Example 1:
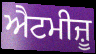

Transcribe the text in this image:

ਐਟਮੀਜ਼ੂ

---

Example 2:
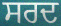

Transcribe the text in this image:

ਸਰਦ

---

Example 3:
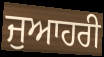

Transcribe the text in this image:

ਜੁਆਹਰੀ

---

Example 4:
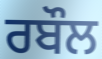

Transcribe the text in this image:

ਰਬੌਲ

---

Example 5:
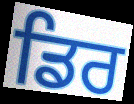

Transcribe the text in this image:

ਡਿਰ